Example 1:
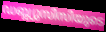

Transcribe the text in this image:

ഡബ്ല്യുസിസിയുടെ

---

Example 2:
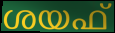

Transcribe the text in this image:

ശയഫ്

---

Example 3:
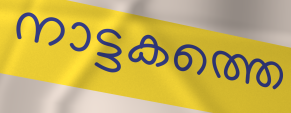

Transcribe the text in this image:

നാട്ടകത്തെ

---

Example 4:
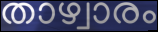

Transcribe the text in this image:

താഴ്വാരം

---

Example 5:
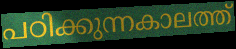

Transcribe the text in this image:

പഠിക്കുന്നകാലത്ത്